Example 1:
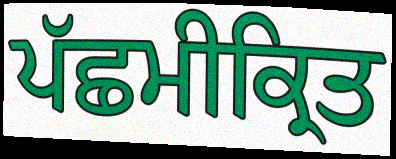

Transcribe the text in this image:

ਪੱਛਮੀਕ੍ਰਿਤ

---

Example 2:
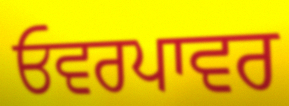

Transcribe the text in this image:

ਓਵਰਪਾਵਰ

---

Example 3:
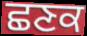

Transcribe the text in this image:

ਛਣਕ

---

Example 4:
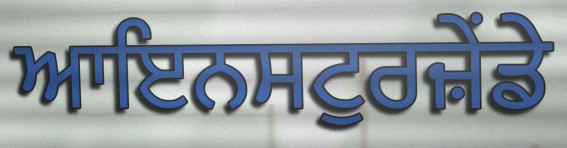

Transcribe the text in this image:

ਆਇਨਸਟੁਰਜ਼ੇਂਡੇ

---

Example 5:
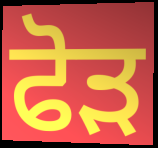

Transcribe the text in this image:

ਫੋਡ਼